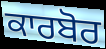
ਕਾਰਬੋਰ